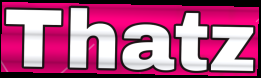
Thatz